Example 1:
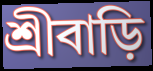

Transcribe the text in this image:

শ্রীবাড়ি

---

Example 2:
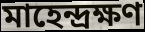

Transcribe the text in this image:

মাহেন্দ্রক্ষণ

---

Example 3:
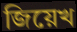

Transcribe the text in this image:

জিয়েখ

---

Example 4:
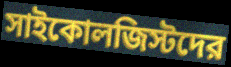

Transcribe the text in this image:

সাইকোলজিস্টদের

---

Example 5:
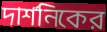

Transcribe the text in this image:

দার্শনিকের